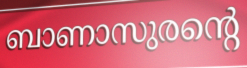
ബാണാസുരന്റെ